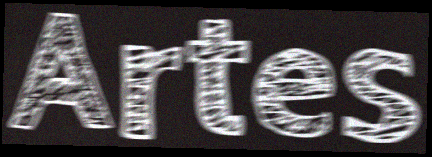
Artes